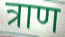
त्राण